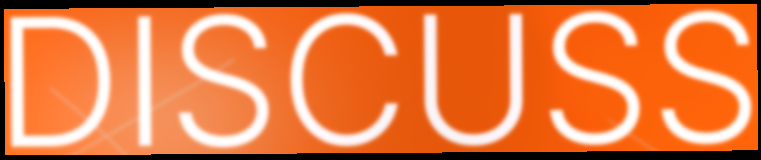
DISCUSS